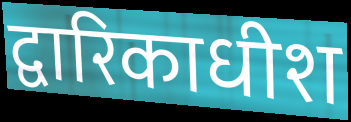
द्वारिकाधीश